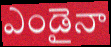
ఎండైనా